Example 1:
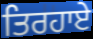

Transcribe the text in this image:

ਤਿਰਹਾਏ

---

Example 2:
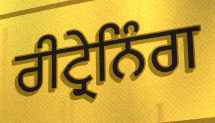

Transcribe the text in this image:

ਰੀਟ੍ਰੇਨਿੰਗ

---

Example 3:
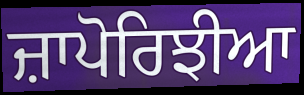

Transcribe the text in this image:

ਜ਼ਾਪੋਰਿਝੀਆ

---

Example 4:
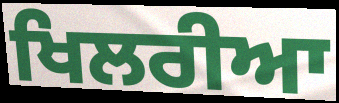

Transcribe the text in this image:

ਖਿਲਰੀਆ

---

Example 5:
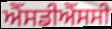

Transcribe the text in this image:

ਐੱਸਡੀਐੱਸਸੀ